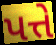
પત્તે